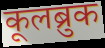
कूलब्रुक